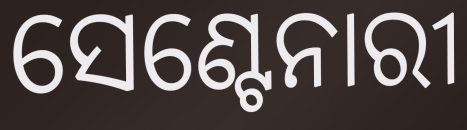
ସେଣ୍ଟେନାରୀ